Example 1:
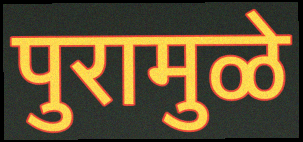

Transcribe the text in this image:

पुरामुळे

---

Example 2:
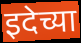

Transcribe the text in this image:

इदेच्या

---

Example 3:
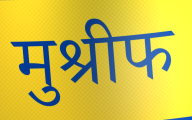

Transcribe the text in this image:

मुश्रीफ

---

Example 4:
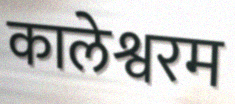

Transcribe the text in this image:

कालेश्वरम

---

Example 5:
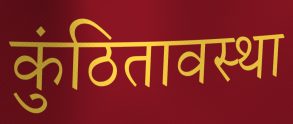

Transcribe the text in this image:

कुंठितावस्था